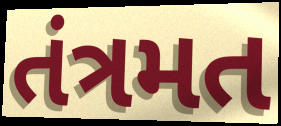
તંત્રમત